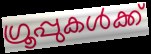
ഗ്രൂപ്പുകൾക്ക്